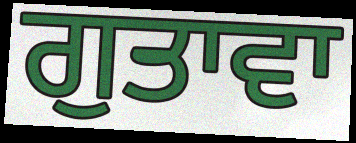
ਗੁਤਾਵਾ